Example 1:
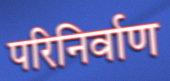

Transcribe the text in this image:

परिनिर्वाण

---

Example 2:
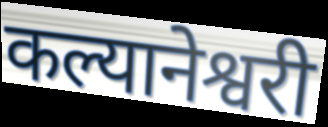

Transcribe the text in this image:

कल्यानेश्वरी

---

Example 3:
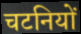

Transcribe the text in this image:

चटनियों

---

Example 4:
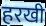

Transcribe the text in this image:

हरखी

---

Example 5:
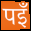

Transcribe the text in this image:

पइँ